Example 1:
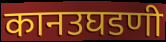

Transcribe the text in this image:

कानउघडणी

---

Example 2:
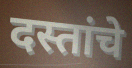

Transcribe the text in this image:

दस्तांचे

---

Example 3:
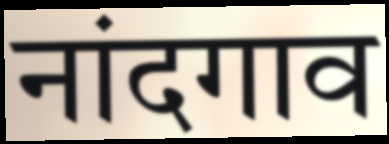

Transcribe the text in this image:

नांदगाव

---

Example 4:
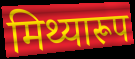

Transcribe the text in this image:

मिथ्यारूप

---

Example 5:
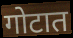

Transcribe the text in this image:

गोटात